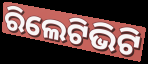
ରିଲେଟିଭିଟି